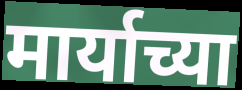
मार्याच्या